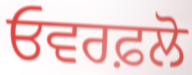
ਓਵਰਫ਼ਲੋ